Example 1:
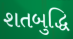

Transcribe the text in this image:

શતબુદ્ધિ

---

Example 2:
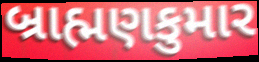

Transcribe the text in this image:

બ્રાહ્મણકુમાર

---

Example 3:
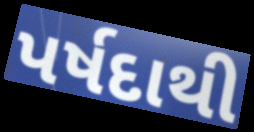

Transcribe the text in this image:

પર્ષદાથી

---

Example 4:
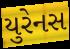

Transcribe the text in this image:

યુરેનસ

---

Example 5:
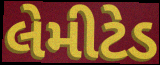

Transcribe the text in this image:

લેમીટેડ